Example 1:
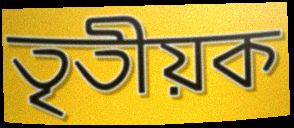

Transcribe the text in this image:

তৃতীয়ক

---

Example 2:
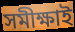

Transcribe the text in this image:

সমীক্ষাই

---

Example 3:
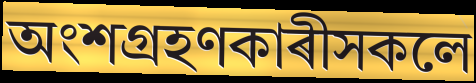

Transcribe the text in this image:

অংশগ্ৰহণকাৰীসকলে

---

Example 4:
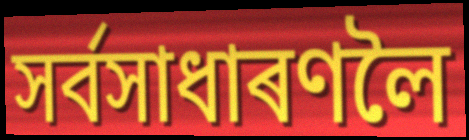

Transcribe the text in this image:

সৰ্বসাধাৰণলৈ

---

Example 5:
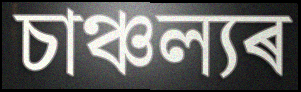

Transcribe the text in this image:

চাঞ্চল্যৰ